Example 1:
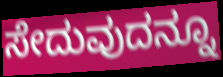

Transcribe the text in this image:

ಸೇದುವುದನ್ನೂ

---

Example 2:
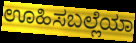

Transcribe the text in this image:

ಊಹಿಸಬಲ್ಲೆಯಾ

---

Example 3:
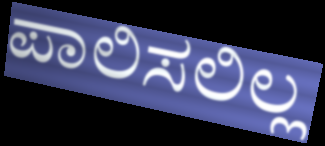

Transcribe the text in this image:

ಪಾಲಿಸಲಿಲ್ಲ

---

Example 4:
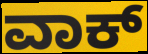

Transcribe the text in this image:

ವಾಕ್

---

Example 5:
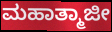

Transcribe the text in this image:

ಮಹಾತ್ಮಾಜೀ